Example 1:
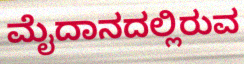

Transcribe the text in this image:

ಮೈದಾನದಲ್ಲಿರುವ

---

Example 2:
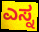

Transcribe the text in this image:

ಎಸ್ನ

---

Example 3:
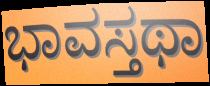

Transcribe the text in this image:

ಭಾವಸ್ತಥಾ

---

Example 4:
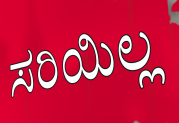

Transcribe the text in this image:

ಸರಿಯಿಲ್ಲ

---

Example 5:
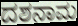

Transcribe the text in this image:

ದಶನಾಮ